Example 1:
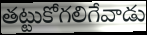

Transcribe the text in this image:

తట్టుకోగలిగేవాడు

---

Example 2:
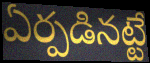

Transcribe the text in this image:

ఏర్పడినట్టే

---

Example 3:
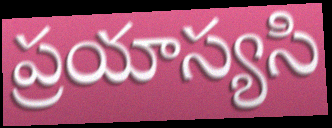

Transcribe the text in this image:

ప్రయాస్యసి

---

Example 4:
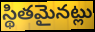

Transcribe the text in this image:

స్థితమైనట్లు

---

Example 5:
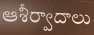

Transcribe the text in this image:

ఆశీర్వాదాలు